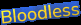
Bloodless